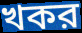
খকর